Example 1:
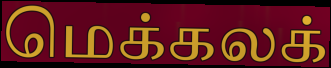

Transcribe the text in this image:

மெக்கலக்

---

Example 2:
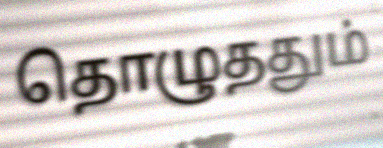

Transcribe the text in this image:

தொழுததும்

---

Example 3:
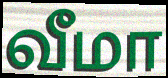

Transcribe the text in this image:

வீமா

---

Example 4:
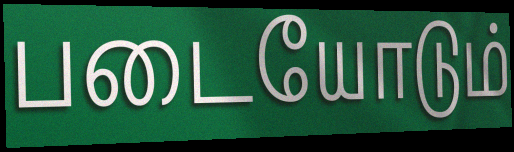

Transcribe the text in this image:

படையோடும்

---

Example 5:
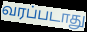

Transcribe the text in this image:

வரப்படாது